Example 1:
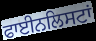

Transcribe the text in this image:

ਫਾਈਨਲਿਸਟਾਂ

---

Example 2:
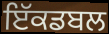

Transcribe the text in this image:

ਇੱਕਡਬਲ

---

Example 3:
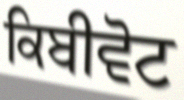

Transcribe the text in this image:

ਕਿਬੀਵੋਟ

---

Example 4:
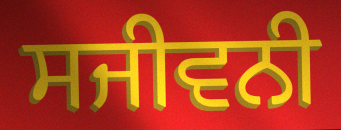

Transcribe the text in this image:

ਸਜੀਵਨੀ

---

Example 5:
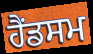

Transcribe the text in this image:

ਹੈਂਡਸਮ